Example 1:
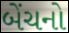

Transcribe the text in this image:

બેંચનો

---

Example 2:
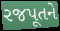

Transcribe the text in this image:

રજપૂતને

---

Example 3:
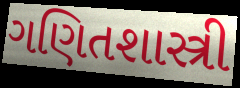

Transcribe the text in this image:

ગણિતશાસ્ત્રી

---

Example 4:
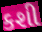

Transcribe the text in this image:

કશી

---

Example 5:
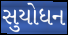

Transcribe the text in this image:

સુયોધન